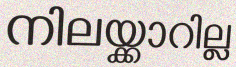
നിലയ്ക്കാറില്ല